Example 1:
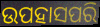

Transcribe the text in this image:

ଉପହାସପରି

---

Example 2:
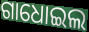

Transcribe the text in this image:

ଗାଧୋଇଲ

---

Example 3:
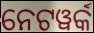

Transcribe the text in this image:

ନେଟୱର୍କ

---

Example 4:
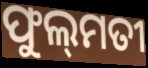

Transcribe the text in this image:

ଫୁଲ୍‍ମତୀ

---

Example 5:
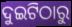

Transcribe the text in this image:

ଦୁଇଟିଠାରୁ